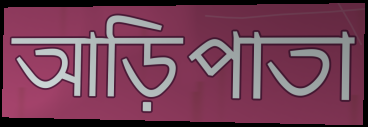
আড়িপাতা